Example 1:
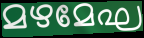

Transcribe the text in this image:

മഴമേഘ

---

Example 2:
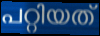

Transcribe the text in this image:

പറ്റിയത്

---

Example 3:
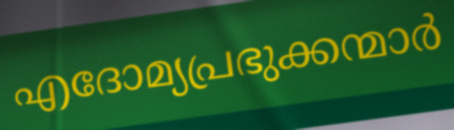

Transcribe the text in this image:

എദോമ്യപ്രഭുക്കന്മാർ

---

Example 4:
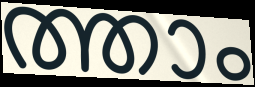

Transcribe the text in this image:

ത്താം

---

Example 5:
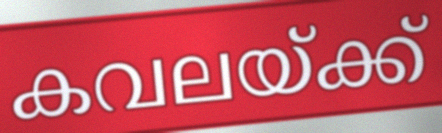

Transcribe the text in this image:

കവലയ്ക്ക്